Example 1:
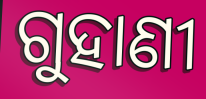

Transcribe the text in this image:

ଗୁହାଣୀ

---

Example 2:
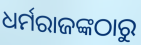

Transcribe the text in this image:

ଧର୍ମରାଜଙ୍କଠାରୁ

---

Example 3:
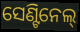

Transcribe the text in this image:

ସେଣ୍ଟିନେଲ୍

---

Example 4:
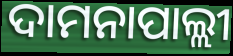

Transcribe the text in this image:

ଦାମନାପାଲ୍ଲୀ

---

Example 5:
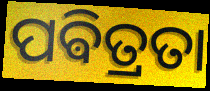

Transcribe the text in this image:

ପଵିତ୍ରତା